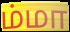
ம்மா